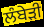
ਲੰਬੇੜੀ